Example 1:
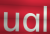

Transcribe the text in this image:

ual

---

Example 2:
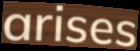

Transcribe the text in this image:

arises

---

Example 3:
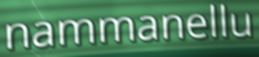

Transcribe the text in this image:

nammanellu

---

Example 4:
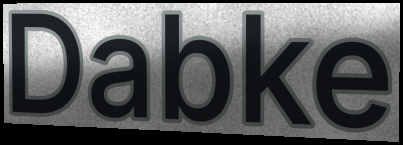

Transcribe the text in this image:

Dabke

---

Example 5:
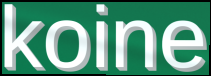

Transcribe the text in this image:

koine